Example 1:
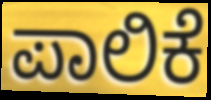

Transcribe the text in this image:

ಪಾಲಿಕೆ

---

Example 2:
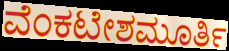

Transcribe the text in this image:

ವೆಂಕಟೇಶಮೂರ್ತಿ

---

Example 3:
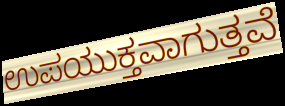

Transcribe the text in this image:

ಉಪಯುಕ್ತವಾಗುತ್ತವೆ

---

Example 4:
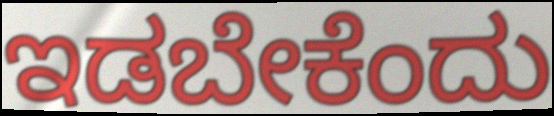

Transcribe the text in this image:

ಇಡಬೇಕೆಂದು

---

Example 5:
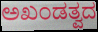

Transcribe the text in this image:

ಅಖಂಡತ್ವದ